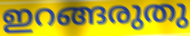
ഇറങ്ങരുതു